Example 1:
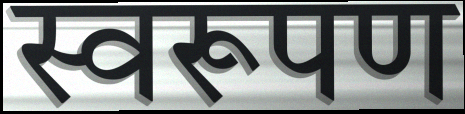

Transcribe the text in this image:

स्वरूपण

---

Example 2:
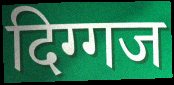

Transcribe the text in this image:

दिग्गज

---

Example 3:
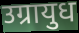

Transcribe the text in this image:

उग्रायुध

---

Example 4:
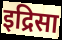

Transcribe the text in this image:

इद्रिसा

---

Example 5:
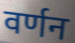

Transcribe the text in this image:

वर्णन